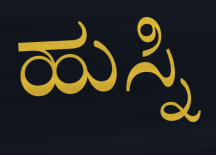
ಹುಸ್ನಿ